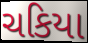
ચકિયા